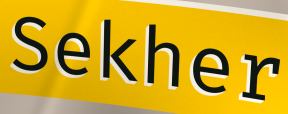
Sekher